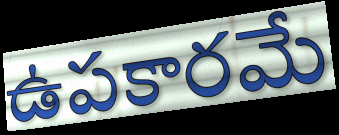
ఉపకారమే